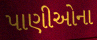
પાણીઓના